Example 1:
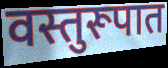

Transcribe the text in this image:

वस्तुरूपात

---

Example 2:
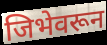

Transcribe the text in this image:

जिभेवरून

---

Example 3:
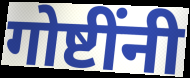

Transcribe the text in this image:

गोष्टींनी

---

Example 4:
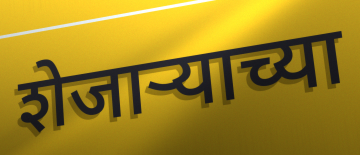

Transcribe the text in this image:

शेजाऱ्याच्या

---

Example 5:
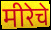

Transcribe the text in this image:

मीरेचे